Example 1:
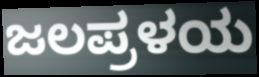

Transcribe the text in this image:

ಜಲಪ್ರಳಯ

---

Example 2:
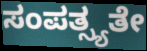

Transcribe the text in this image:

ಸಂಪತ್ಸ್ಯತೇ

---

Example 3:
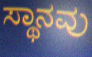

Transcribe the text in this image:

ಸ್ಥಾನವು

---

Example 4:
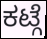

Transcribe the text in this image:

ಕಟ್ಗೆ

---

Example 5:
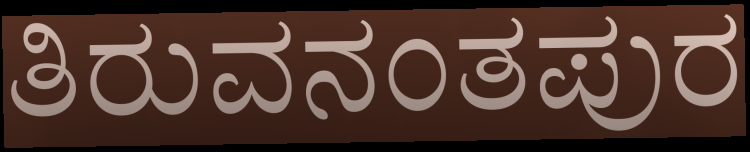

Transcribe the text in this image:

ತಿರುವನಂತಪುರ